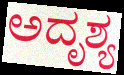
ಅದೃಶ್ಯ